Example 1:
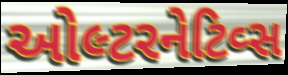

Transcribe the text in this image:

ઓલ્ટરનેટિવ્સ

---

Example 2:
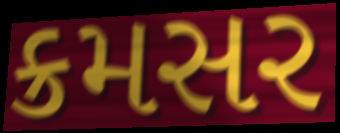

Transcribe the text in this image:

ક્રમસર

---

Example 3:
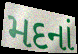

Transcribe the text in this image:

મદનાં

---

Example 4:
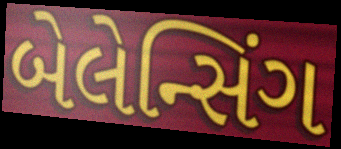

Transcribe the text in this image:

બેલેન્સિંગ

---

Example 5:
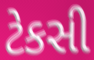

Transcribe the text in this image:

ટેકસી